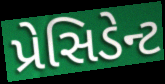
પ્રેસિડેન્ટ